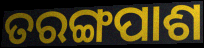
ତରଙ୍ଗପାଶ